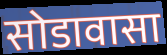
सोडावासा